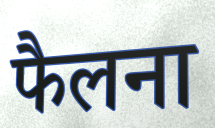
फैलना